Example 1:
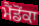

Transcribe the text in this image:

ਮੈਂਡੋਂਕਾ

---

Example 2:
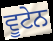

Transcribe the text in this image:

ਵੂਟੇਨ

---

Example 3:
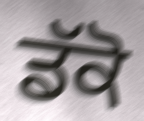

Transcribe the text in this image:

ਡੱਕੋ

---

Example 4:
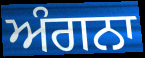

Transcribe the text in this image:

ਅੰਗਨਾ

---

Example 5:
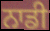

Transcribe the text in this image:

ਨਾਡੀ